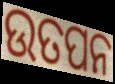
ଉତପନ